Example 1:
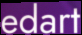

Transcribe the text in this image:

edart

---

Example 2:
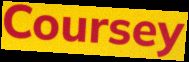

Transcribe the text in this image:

Coursey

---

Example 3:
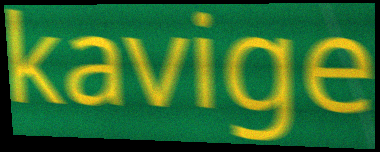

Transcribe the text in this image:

kavige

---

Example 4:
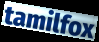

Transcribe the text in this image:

tamilfox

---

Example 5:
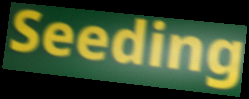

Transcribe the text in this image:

Seeding